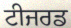
ਟੀਜਰਡ